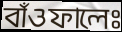
বাঁওফালেঃ